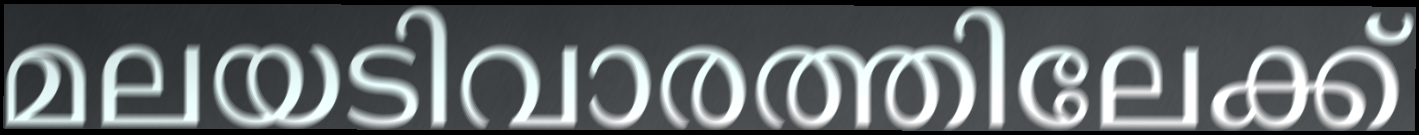
മലയടിവാരത്തിലേക്ക്